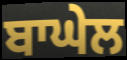
ਬਾਘੇਲ